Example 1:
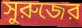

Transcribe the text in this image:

সুরুজের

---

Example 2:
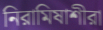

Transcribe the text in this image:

নিরামিষাশীরা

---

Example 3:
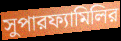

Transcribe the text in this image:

সুপারফ্যামিলির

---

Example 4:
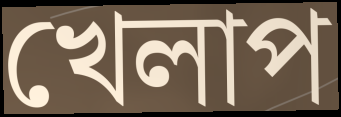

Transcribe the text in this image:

খেলাপ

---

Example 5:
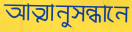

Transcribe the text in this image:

আত্মানুসন্ধানে